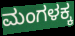
ಮಂಗಳಕ್ಕ